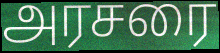
அரசரை